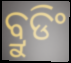
ବ୍ରୁଡିଂ